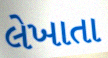
લેખાતા